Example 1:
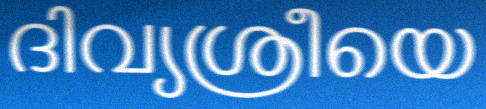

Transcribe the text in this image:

ദിവ്യശ്രീയെ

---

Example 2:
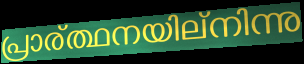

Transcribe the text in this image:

പ്രാര്ത്ഥനയില്നിന്നു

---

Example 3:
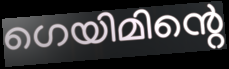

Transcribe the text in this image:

ഗെയിമിന്റെ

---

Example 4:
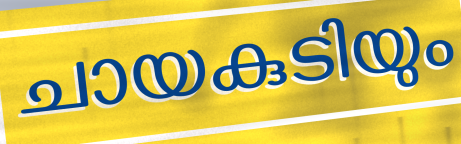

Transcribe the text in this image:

ചായകുടിയും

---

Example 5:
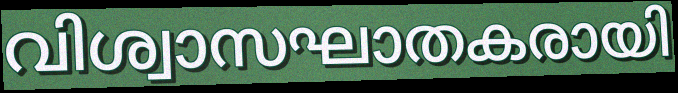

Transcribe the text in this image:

വിശ്വാസഘാതകരായി